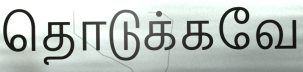
தொடுக்கவே